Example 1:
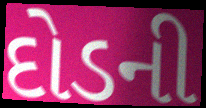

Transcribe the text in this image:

દોડની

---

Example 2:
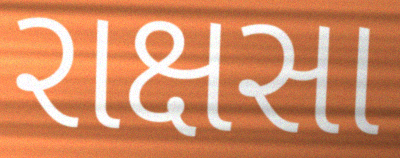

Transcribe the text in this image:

રાક્ષસા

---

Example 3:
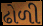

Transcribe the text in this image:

ઢોળી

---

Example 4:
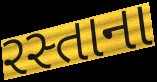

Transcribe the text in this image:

રસ્તાના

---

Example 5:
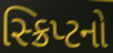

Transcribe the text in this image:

સ્ક્રિપ્ટનો